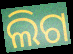
ଲିଗ